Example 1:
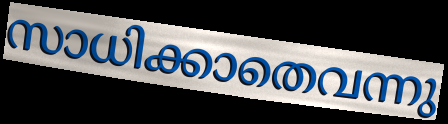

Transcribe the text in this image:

സാധിക്കാതെവന്നു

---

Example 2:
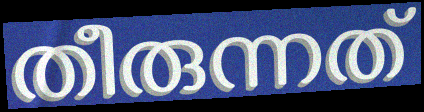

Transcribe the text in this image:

തീരുന്നത്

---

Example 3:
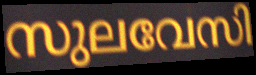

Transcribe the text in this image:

സുലവേസി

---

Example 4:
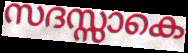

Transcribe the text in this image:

സദസ്സാകെ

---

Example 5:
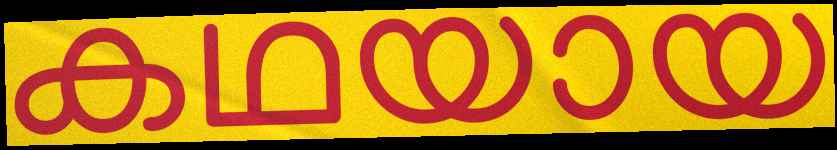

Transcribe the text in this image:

കഥയായ